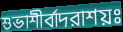
শুভাশীর্বাদরাশয়ঃ